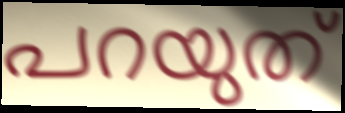
പറയുത്